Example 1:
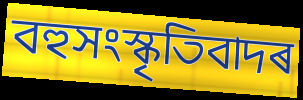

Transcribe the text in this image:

বহুসংস্কৃতিবাদৰ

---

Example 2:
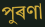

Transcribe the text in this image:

পুৰণা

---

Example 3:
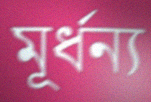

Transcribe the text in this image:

মূৰ্ধন্য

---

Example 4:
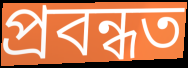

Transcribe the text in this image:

প্ৰবন্ধত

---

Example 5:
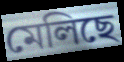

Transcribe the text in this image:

মেলিছে